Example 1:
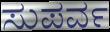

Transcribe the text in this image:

ಸುಪರ್ವ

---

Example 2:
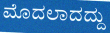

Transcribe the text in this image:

ಮೊದಲಾದದ್ದು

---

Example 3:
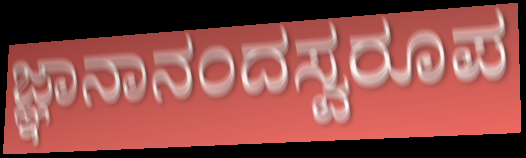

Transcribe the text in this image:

ಜ್ಞಾನಾನಂದಸ್ವರೂಪ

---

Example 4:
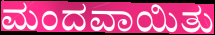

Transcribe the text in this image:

ಮಂದವಾಯಿತು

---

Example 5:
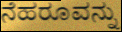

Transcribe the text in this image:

ನೆಹರೂವನ್ನು